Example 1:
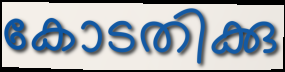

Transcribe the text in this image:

കോടതിക്കു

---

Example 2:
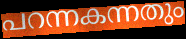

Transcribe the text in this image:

പറന്നകന്നതും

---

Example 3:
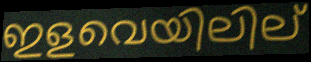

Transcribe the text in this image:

ഇളവെയിലില്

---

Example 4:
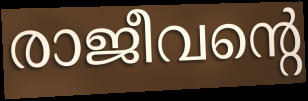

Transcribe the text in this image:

രാജീവന്റെ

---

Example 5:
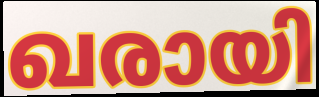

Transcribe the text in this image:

ഖരായി